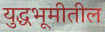
युद्धभूमीतील